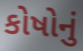
કોષોનું